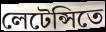
লেটেন্সিতে